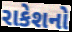
રાકેશનો